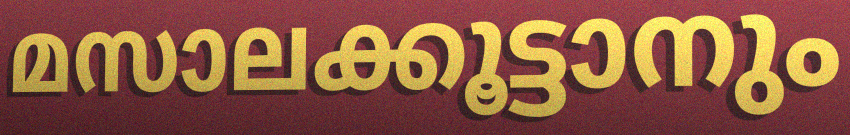
മസാലക്കൂട്ടാനും